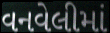
વનવેલીમાં